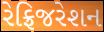
રેફ્રિજરેશન